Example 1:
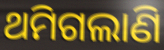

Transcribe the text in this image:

ଥମିଗଲାଣି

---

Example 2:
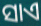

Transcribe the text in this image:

ସାଏ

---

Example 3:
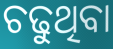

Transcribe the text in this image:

ଚଢୁଥିବା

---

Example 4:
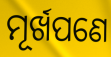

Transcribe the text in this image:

ମୂର୍ଖପଣେ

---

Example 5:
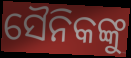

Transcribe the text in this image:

ସୈନିକଙ୍କୁ